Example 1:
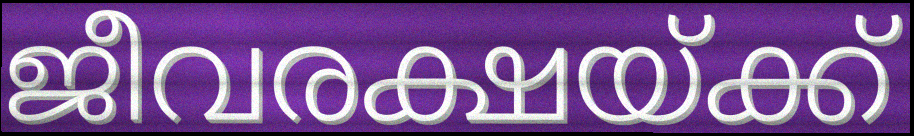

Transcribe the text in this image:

ജീവരക്ഷയ്ക്ക്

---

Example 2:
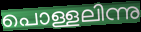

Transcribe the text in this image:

പൊള്ളലിന്നു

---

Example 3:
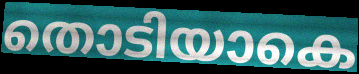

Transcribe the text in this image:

തൊടിയാകെ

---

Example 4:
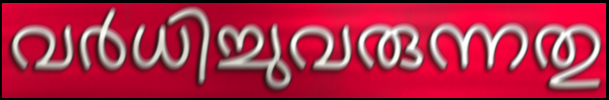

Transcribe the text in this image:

വർധിച്ചുവരുന്നതു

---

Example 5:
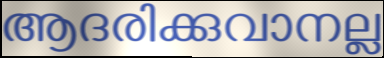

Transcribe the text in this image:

ആദരിക്കുവാനല്ല